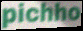
pichho